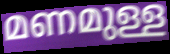
മണമുള്ള